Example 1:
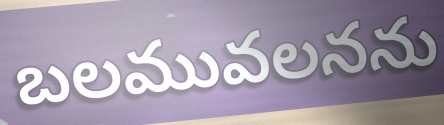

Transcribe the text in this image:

బలమువలనను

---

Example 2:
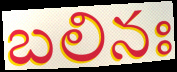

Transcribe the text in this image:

బలినః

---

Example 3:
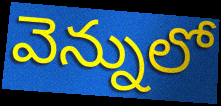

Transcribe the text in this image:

వెన్నులో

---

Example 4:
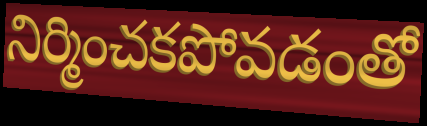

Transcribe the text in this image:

నిర్మించకపోవడంతో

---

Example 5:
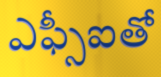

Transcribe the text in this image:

ఎఫ్సీఐతో